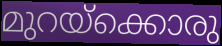
മുറയ്ക്കൊരു